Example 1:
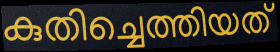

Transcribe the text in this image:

കുതിച്ചെത്തിയത്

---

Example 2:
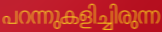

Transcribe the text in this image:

പറന്നുകളിച്ചിരുന്ന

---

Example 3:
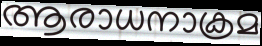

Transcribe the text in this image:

ആരാധനാക്രമ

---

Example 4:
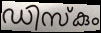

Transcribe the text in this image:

ഡിസ്കും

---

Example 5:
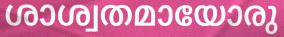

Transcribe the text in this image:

ശാശ്വതമായോരു